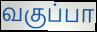
வகுப்பா